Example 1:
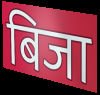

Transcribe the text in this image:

बिजा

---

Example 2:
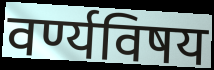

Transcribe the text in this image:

वर्ण्यविषय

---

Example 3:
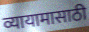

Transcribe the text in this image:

व्यायामासाठी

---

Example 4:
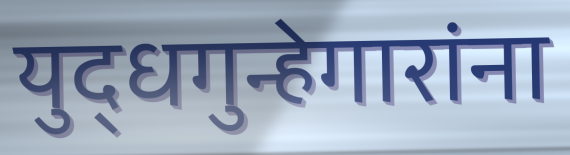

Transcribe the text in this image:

युद्धगुन्हेगारांना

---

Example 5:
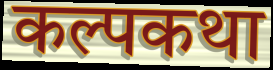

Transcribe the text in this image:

कल्पकथा